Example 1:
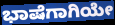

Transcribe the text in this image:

ಭಾಷೆಗಾಗಿಯೇ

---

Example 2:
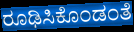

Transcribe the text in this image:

ರೂಢಿಸಿಕೊಂಡಂತೆ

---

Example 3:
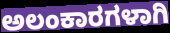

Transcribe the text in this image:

ಅಲಂಕಾರಗಳಾಗಿ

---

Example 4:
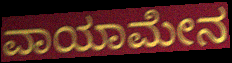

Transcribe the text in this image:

ವಾಯಾಮೇನ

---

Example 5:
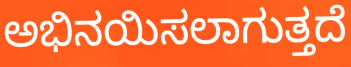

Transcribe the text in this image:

ಅಭಿನಯಿಸಲಾಗುತ್ತದೆ